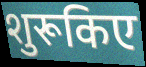
शुरूकिए